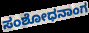
ಸಂಶೋಧನಾಂಗ